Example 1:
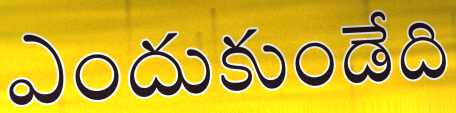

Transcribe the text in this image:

ఎందుకుండేది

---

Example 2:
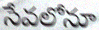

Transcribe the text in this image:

సేవలోనూ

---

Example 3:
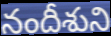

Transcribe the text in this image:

నందీశుని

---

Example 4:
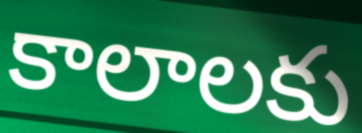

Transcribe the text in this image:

కాలాలకు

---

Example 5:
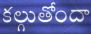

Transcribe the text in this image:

కల్గుతోందా